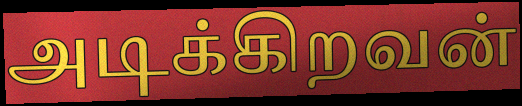
அடிக்கிறவன்